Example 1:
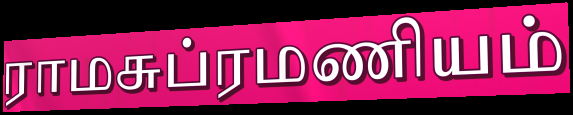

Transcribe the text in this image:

ராமசுப்ரமணியம்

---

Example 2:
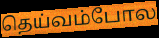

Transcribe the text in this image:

தெய்வம்போல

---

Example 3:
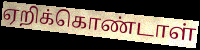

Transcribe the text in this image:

ஏறிக்கொண்டாள்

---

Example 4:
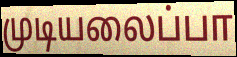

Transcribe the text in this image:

முடியலைப்பா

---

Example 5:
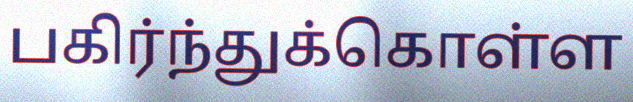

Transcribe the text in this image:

பகிர்ந்துக்கொள்ள